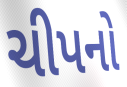
ચીપનો